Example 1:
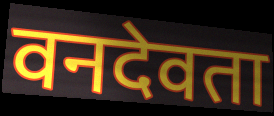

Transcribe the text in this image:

वनदेवता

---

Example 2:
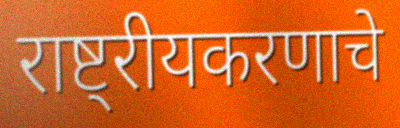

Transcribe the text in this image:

राष्ट्रीयकरणाचे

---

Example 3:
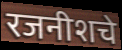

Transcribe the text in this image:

रजनीशचे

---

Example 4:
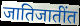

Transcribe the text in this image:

जातिजातींत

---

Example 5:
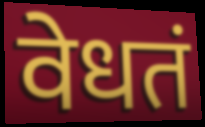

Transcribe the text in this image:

वेधतं